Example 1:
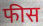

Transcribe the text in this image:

फीस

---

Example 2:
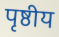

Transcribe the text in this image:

पृष्ठीय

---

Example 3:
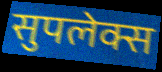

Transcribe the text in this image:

सुपलेक्स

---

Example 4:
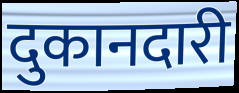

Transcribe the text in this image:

दुकानदारी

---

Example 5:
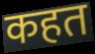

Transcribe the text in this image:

कहत